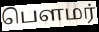
பௌமர்